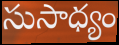
సుసాధ్యం